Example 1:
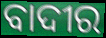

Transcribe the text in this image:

ବାଦୀର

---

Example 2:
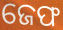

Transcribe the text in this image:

ଜେଫ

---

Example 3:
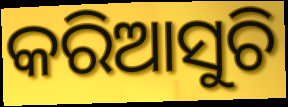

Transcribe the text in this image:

କରିଆସୁଚି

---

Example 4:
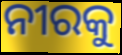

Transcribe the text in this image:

ନୀରକୁ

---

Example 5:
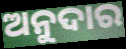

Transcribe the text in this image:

ଅନୁଦାର